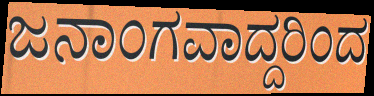
ಜನಾಂಗವಾದ್ದರಿಂದ